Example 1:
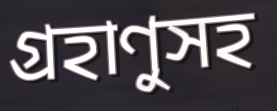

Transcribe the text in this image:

গ্রহাণুসহ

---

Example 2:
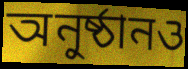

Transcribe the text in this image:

অনুষ্ঠানও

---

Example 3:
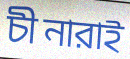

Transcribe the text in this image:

চীনারাই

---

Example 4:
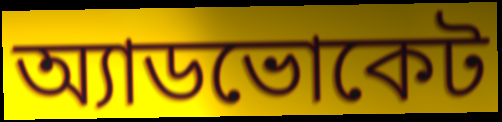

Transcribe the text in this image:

অ্যাডভোকেট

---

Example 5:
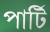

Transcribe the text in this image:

পার্টি